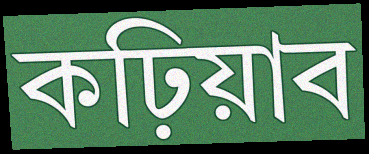
কঢ়িয়াব